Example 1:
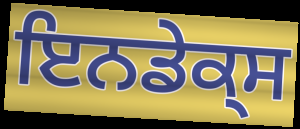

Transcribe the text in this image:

ਇਨਡੇਕ੍ਸ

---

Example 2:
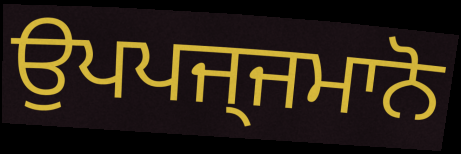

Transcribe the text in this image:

ਉਪਪਜ੍ਜਮਾਨੋ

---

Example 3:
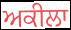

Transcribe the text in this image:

ਅਕੀਲਾ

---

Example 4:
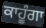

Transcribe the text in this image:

ਕਾਹੂੰਗਾ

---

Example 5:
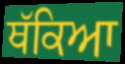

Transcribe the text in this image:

ਥੱਕਿਆ